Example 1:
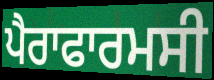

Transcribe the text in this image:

ਪੈਰਾਫਾਰਮਸੀ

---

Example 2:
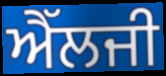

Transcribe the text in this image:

ਐੱਲਜੀ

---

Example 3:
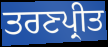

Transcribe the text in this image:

ਤਰਣਪ੍ਰੀਤ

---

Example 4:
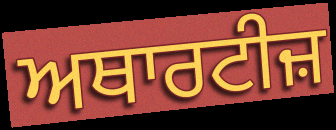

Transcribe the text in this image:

ਅਥਾਰਟੀਜ਼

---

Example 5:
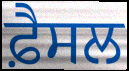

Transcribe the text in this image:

ਫ਼ੈਸਲ